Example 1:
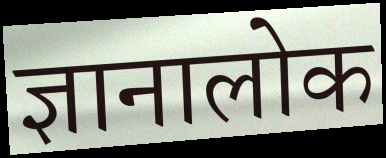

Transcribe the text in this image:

ज्ञानालोक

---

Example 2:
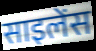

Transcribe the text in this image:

साइलेंस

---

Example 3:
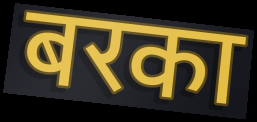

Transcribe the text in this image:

बरका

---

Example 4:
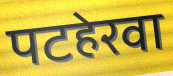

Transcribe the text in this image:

पटहेरवा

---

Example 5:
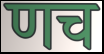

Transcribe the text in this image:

णच